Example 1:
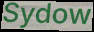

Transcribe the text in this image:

Sydow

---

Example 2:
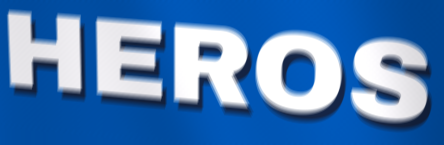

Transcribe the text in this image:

HEROS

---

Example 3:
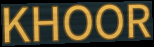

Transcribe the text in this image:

KHOOR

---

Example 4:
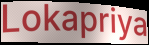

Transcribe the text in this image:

Lokapriya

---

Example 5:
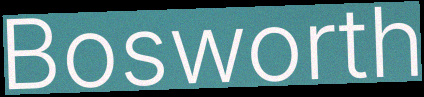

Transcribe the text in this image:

Bosworth